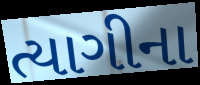
ત્યાગીના